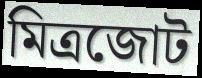
মিত্রজোট